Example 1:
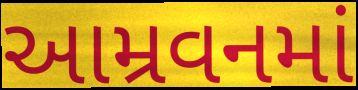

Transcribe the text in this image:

આમ્રવનમાં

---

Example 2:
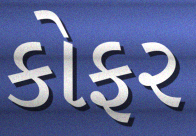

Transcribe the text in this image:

કોફર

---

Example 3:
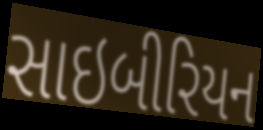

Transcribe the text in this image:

સાઇબીરિયન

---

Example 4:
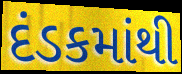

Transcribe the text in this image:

દંડકમાંથી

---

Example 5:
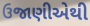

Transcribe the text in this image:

ઉજાણીએથી